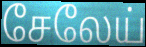
சேலேய்